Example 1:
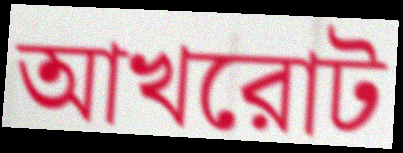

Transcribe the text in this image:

আখরোট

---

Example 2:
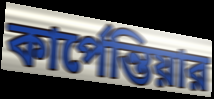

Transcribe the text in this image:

কার্পেন্তিয়ার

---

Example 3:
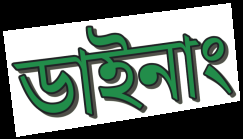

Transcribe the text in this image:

ডাইনাং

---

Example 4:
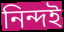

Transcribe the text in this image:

নিন্দই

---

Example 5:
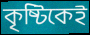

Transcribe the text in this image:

কৃষ্টিকেই